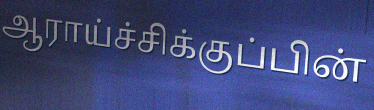
ஆராய்ச்சிக்குப்பின்